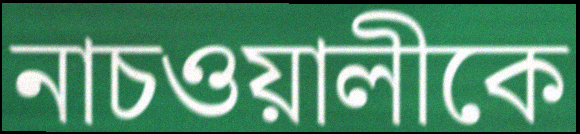
নাচওয়ালীকে